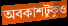
অবকাশটুকুও